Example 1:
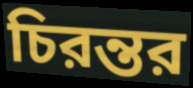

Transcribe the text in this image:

চিরন্তর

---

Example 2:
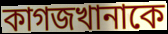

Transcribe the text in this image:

কাগজখানাকে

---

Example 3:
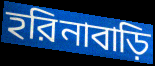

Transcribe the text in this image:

হরিনাবাড়ি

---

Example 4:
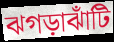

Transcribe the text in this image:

ঝগড়াঝাঁটি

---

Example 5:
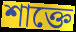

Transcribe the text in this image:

শাক্তে